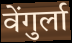
वेंगुर्ला